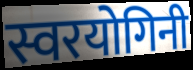
स्वरयोगिनी